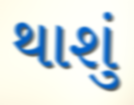
થાશું